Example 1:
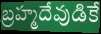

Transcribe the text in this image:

బ్రహ్మదేవుడికే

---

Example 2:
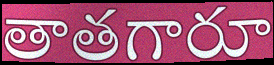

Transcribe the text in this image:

తాతగారూ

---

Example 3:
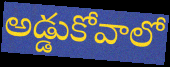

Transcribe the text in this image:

అడ్డుకోవాలో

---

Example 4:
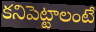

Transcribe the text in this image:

కనిపెట్టాలంటే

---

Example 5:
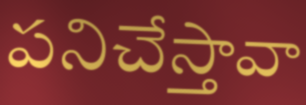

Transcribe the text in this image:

పనిచేస్తావా